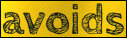
avoids